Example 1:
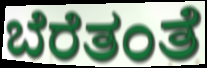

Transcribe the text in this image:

ಬೆರೆತಂತೆ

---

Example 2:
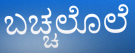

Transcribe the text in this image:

ಬಚ್ಚಲೊಲೆ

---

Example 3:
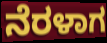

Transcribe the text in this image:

ನೆರಳಾಗ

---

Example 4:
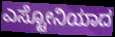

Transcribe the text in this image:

ಎಸ್ಟೋನಿಯಾದ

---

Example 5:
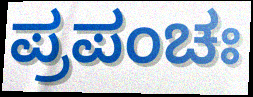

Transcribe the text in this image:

ಪ್ರಪಂಚಃ